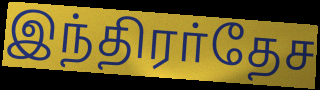
இந்திரர்தேச